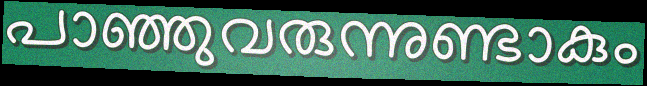
പാഞ്ഞുവരുന്നുണ്ടാകും